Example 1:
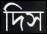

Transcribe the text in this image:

দিস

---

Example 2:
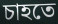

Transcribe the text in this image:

চাহতে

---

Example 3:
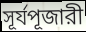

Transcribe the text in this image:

সূর্যপূজারী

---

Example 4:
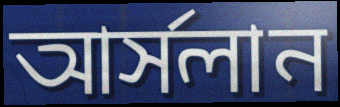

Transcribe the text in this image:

আর্সলান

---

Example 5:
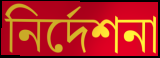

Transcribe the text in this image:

নির্দেশনা